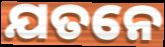
ଯତନେ